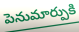
పెనుమార్పుకి